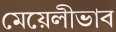
মেয়েলীভাব